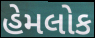
હેમલોક